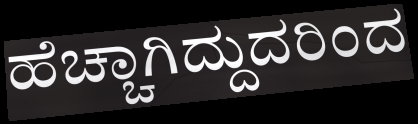
ಹೆಚ್ಚಾಗಿದ್ದುದರಿಂದ